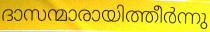
ദാസന്മാരായിത്തീർന്നു